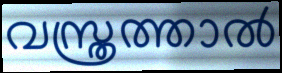
വസ്ത്രത്താൽ